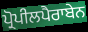
ਪ੍ਰੋਪੀਲਪੈਰਾਬੇਨ